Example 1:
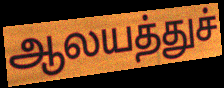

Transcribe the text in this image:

ஆலயத்துச்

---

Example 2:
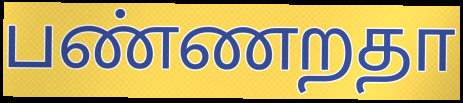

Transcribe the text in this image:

பண்ணறதா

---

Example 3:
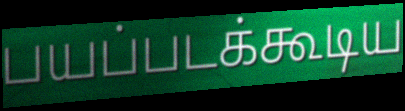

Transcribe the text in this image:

பயப்படக்கூடிய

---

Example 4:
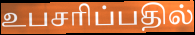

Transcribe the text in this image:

உபசரிப்பதில்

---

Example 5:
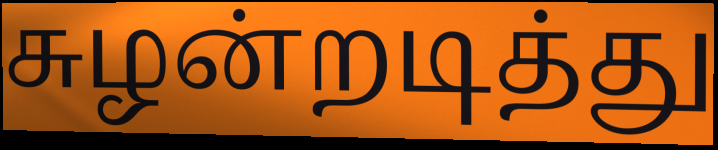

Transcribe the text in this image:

சுழன்றடித்து